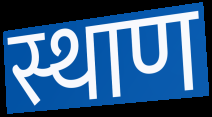
स्थाण